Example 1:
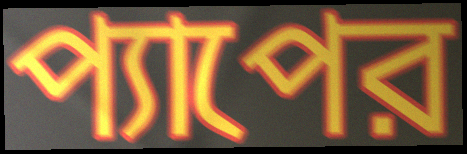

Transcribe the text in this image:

প্যাপের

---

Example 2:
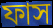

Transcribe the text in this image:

ফাস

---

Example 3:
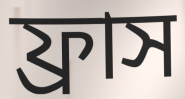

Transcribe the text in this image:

ফ্রাস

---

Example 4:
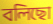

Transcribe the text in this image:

বলিছো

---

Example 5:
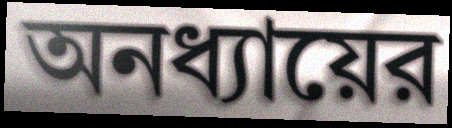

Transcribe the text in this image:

অনধ্যায়ের